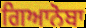
ਗਿਆਨੋਬਾ